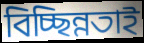
বিচ্ছিন্নতাই